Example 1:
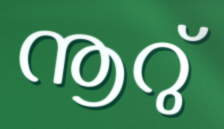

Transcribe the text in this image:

നൂറു്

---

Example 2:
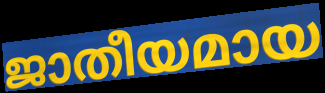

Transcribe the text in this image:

ജാതീയമായ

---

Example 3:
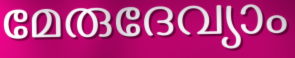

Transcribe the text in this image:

മേരുദേവ്യാം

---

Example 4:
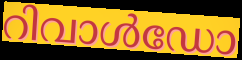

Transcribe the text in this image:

റിവാൾഡോ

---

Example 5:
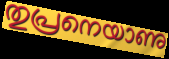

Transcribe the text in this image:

തുപ്രനെയാണു